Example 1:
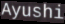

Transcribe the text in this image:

Ayushi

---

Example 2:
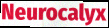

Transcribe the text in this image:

Neurocalyx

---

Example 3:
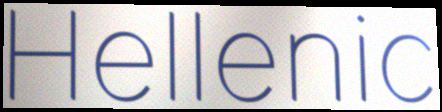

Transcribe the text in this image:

Hellenic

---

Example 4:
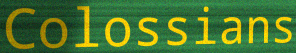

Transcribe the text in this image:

Colossians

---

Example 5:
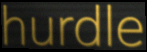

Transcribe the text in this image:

hurdle